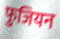
फुजियन